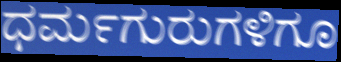
ಧರ್ಮಗುರುಗಳಿಗೂ